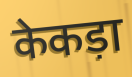
केकड़ा